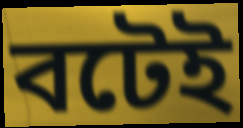
বটেই